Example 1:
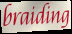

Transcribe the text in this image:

braiding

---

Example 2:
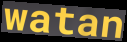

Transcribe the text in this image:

watan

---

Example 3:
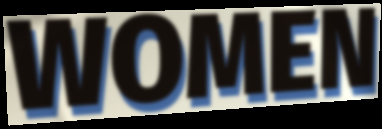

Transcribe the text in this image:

WOMEN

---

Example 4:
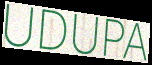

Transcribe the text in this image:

UDUPA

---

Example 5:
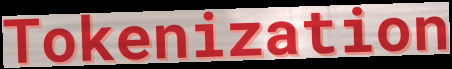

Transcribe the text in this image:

Tokenization